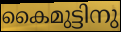
കൈമുട്ടിനു